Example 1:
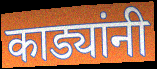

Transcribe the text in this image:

काड्यांनी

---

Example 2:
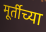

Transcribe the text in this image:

मूर्तीच्या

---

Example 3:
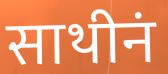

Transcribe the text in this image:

साथीनं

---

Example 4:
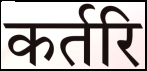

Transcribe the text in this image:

कर्तरि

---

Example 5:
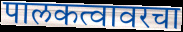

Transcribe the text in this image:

पालकत्वावरचा